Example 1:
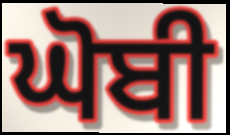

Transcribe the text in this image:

ਘੋਬੀ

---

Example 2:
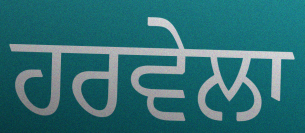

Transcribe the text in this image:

ਹਰਵੇਲਾ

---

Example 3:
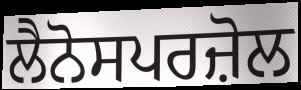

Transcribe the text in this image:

ਲੈਨੋਸਪਰਜ਼ੋਲ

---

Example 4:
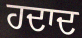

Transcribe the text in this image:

ਹਦਾਦ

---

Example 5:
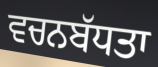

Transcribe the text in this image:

ਵਚਨਬੱਧਤਾ